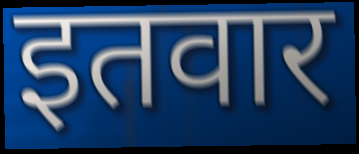
इतवार